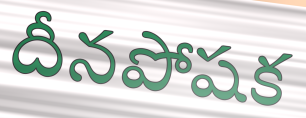
దీనపోషక